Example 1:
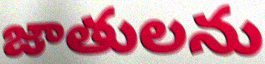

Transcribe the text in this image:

జాతులను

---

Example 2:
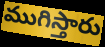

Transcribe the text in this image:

ముగిస్తారు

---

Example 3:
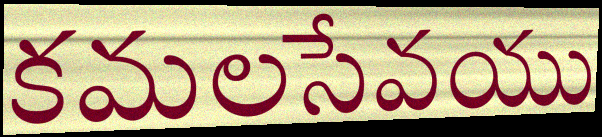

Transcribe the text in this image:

కమలసేవయు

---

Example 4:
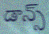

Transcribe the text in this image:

డాన్స్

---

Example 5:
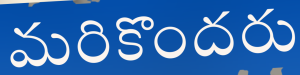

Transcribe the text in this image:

మరికొందరు